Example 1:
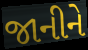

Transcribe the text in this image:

જાનીને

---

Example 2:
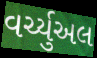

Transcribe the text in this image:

વર્ચ્યુઅલ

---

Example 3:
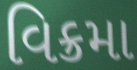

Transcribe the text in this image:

વિક્રમા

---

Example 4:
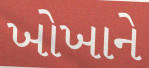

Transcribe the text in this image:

ખોખાને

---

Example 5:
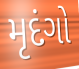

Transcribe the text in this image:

મૃદંગો